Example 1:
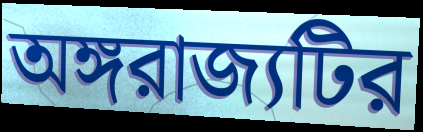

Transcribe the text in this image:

অঙ্গরাজ্যটির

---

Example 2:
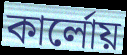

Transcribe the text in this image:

কার্লোয়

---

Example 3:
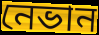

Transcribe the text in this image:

নেভান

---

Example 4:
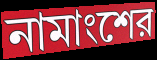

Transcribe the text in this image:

নামাংশের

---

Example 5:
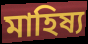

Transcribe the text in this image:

মাহিষ্য